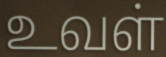
உவள்